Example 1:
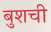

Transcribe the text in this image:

बुशची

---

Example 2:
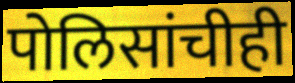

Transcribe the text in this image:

पोलिसांचीही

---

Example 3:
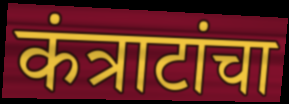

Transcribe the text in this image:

कंत्राटांचा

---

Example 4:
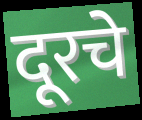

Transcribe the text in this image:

दूरचे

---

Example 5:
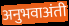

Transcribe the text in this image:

अनुभवाअंती